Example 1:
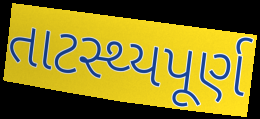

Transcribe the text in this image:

તાટસ્થ્યપૂર્ણ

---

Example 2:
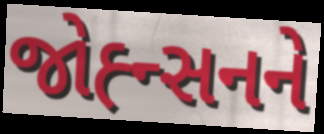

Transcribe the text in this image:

જોહ્ન્સનને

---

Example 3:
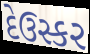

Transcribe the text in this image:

દેઉસ્કર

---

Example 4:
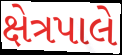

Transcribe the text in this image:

ક્ષેત્રપાલે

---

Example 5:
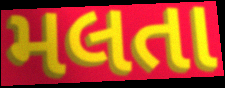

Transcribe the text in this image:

મલતા